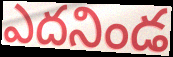
ఎదనిండ